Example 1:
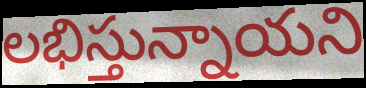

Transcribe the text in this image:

లభిస్తున్నాయని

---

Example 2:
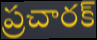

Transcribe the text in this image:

ప్రచారక్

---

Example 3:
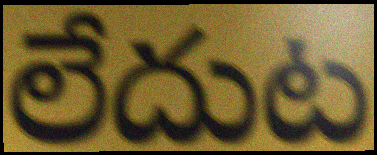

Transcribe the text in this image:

లేదుట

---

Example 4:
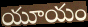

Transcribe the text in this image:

యూయం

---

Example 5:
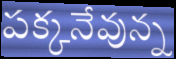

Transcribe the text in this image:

పక్కనేవున్న